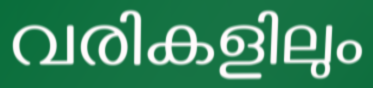
വരികളിലും